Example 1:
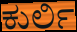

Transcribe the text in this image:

ಕುರ್ಲಿ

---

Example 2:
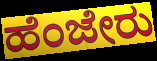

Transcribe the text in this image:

ಹೆಂಜೇರು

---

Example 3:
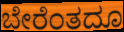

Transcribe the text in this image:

ಬೇರೆಂತದೂ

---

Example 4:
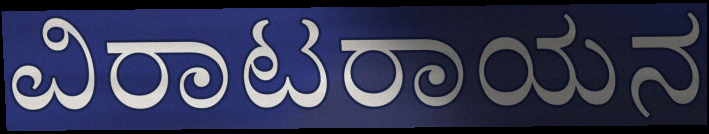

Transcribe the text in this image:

ವಿರಾಟರಾಯನ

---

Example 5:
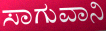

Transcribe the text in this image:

ಸಾಗುವಾನಿ